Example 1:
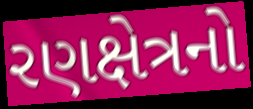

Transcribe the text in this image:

રણક્ષેત્રનો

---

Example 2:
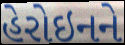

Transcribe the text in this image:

હેરોઇનને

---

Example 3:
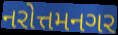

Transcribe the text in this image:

નરોત્તમનગર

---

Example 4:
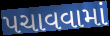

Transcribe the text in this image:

પચાવવામાં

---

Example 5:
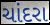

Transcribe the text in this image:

ચાંદરા